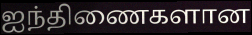
ஐந்திணைகளான